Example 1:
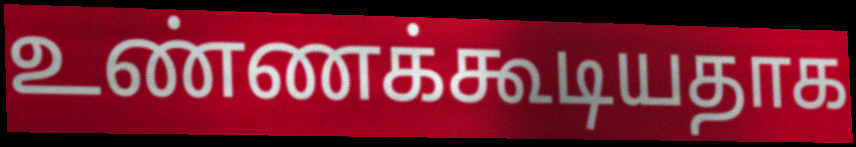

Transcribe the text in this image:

உண்ணக்கூடியதாக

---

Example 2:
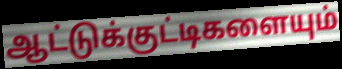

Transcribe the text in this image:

ஆட்டுக்குட்டிகளையும்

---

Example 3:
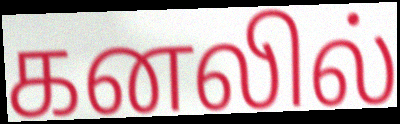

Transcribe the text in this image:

கனலில்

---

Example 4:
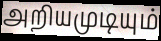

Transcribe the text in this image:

அறியமுடியும்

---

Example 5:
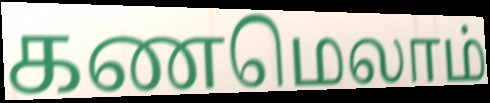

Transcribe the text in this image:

கணமெலாம்